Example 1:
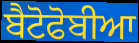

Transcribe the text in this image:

ਬੈਟੋਫੋਬੀਆ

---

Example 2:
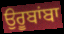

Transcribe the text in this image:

ਉਰੂਬਾਂਬਾ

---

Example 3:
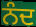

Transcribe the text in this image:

ਨੰਦ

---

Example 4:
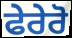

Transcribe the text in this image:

ਫੇਰੇਰੋ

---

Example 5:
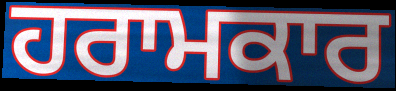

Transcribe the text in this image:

ਹਰਾਮਕਾਰ